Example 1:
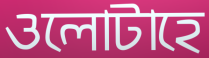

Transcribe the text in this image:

ওলোটাহে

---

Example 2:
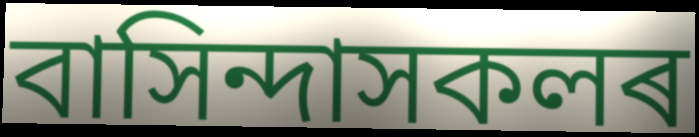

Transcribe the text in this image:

বাসিন্দাসকলৰ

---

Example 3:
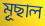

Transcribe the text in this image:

মূছাল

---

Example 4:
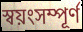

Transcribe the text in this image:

স্বয়ংসম্পূৰ্ণ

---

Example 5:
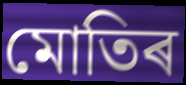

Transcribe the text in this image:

মোতিৰ